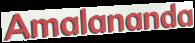
Amalananda